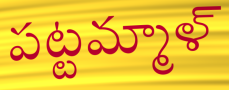
పట్టమ్మాళ్